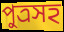
পুত্রসহ